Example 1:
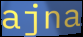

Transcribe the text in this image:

ajna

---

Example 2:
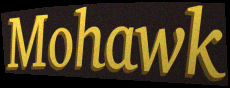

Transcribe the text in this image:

Mohawk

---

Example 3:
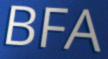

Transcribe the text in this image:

BFA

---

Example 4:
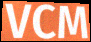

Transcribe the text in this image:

VCM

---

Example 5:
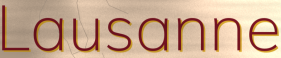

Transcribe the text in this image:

Lausanne